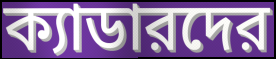
ক্যাডারদের